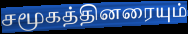
சமூகத்தினரையும்